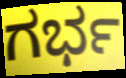
ಗರ್ಭ